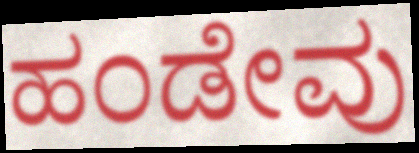
ಹಂಡೇವು